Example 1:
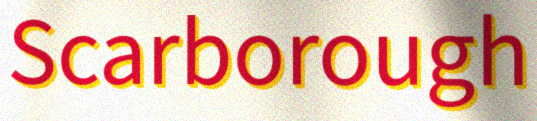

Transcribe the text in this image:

Scarborough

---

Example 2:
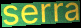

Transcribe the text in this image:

serra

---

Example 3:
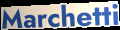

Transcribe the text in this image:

Marchetti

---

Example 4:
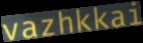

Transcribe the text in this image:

vazhkkai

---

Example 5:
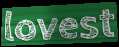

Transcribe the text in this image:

lovest